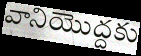
వానియొద్దకు